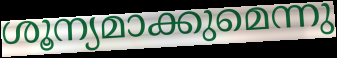
ശൂന്യമാക്കുമെന്നു